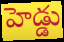
హెడ్డు